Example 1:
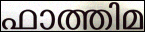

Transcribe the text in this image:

ഫാത്തിമ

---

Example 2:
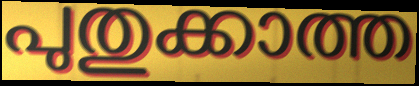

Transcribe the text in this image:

പുതുക്കാത്ത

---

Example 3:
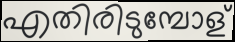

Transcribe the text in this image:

എതിരിടുമ്പോള്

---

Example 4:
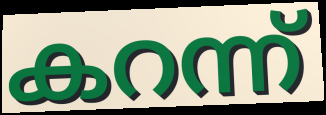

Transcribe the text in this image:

കറന്ന്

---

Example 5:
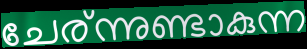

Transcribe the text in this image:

ചേര്ന്നുണ്ടാകുന്ന